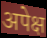
अपेक्ष